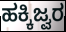
ಹಕ್ಕಿಜ್ವರ